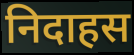
निदाहस